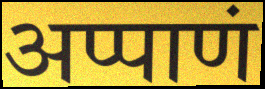
अप्पाणं